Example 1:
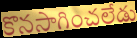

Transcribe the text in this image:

కొనసాగించలేడు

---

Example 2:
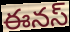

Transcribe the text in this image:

ఈనస్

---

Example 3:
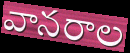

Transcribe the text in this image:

వానరాల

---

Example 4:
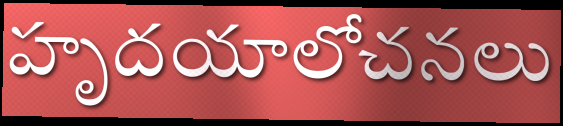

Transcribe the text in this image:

హృదయాలోచనలు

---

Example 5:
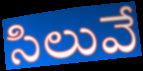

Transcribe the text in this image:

సిలువే